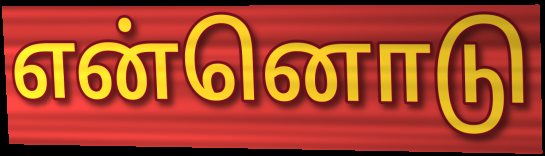
என்னொடு